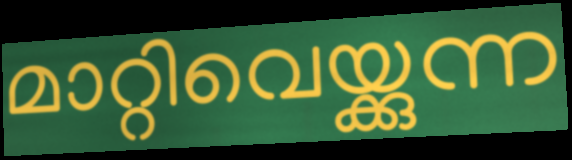
മാറ്റിവെയ്ക്കുന്ന